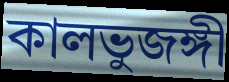
কালভুজঙ্গী